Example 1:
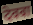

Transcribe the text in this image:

देवबा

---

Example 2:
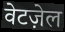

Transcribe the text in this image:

वेटज़ेल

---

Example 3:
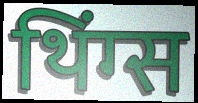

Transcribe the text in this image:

थिंग्स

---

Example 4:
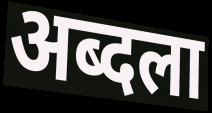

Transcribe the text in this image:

अब्दला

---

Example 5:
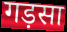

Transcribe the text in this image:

गड़सा